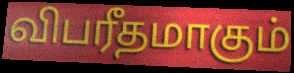
விபரீதமாகும்